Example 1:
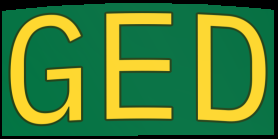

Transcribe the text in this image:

GED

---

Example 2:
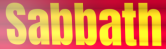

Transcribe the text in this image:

Sabbath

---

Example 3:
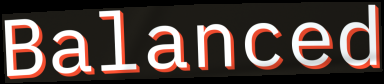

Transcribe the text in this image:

Balanced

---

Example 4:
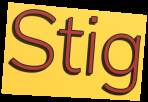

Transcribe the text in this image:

Stig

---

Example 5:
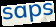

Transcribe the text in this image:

saps